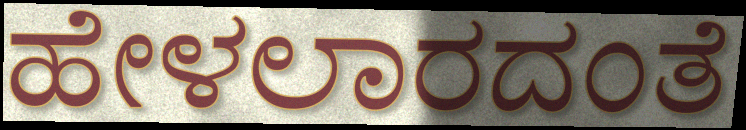
ಹೇಳಲಾರದಂತೆ